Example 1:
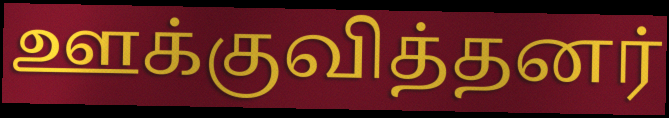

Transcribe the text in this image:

ஊக்குவித்தனர்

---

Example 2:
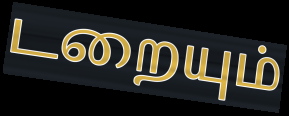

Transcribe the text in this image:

டறையும்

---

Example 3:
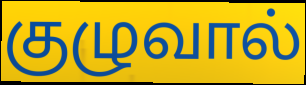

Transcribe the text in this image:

குழுவால்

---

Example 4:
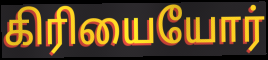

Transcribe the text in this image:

கிரியையோர்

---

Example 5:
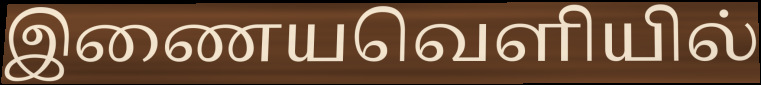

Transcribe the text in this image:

இணையவெளியில்